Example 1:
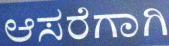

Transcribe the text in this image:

ಆಸರೆಗಾಗಿ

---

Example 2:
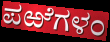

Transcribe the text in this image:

ಪಱೆಗಳಂ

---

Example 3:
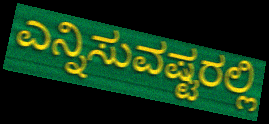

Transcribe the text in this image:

ಎನ್ನಿಸುವಷ್ಟರಲ್ಲಿ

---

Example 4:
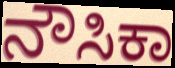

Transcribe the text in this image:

ನೌಸಿಕಾ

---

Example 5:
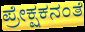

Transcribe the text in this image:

ಪ್ರೇಕ್ಷಕನಂತೆ